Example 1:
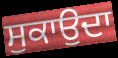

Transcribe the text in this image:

ਸੁਕਾਉਦਾ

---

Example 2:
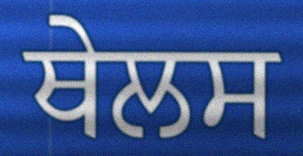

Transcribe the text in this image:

ਥੇਲਸ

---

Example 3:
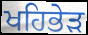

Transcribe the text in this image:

ਖਹਿਭੇੜ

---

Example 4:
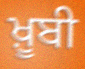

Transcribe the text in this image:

ਖ਼ੂਬੀ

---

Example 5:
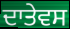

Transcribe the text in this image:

ਦਾਤੇਵਸ